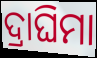
ଦ୍ରାଘିମା